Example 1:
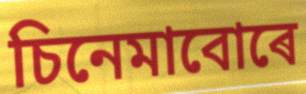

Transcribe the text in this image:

চিনেমাবোৰে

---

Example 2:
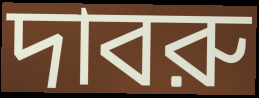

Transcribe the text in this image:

দাবৰু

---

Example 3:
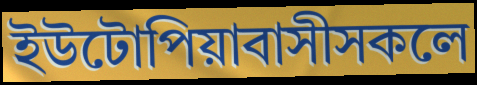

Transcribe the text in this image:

ইউটোপিয়াবাসীসকলে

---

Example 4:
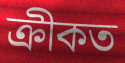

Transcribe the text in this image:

ক্ৰীকত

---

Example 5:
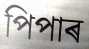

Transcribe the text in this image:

পিপাৰ